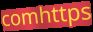
comhttps